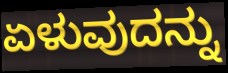
ಏಳುವುದನ್ನು